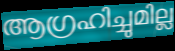
ആഗ്രഹിച്ചുമില്ല